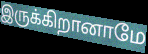
இருக்கிறானாமே